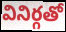
వినిర్గతో